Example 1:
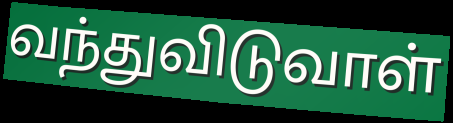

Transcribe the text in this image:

வந்துவிடுவாள்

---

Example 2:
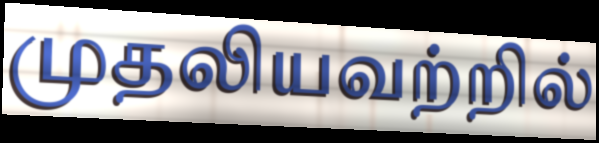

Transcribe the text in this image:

முதலியவற்றில்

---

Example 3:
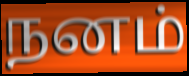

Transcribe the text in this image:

நனம்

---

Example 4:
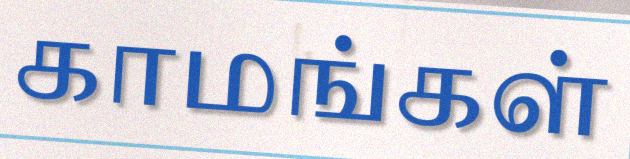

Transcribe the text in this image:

காமங்கள்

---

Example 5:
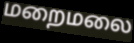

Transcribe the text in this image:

மறைமலை